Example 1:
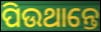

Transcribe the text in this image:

ପିଉଥାନ୍ତେ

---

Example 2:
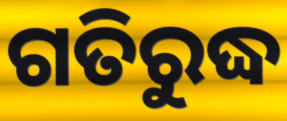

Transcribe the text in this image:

ଗତିରୁଦ୍ଧ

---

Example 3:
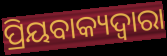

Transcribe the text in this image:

ପ୍ରିୟବାକ୍ୟଦ୍ୱାରା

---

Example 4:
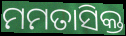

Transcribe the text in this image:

ମମତାସିକ୍ତ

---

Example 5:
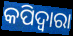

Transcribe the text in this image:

କପିଦ୍ୱାରା